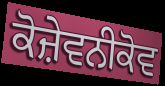
ਕੋਜ਼ੇਵਨੀਕੋਵ